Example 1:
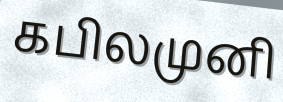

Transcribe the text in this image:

கபிலமுனி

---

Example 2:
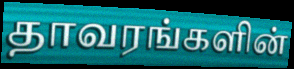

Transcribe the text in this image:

தாவரங்களின்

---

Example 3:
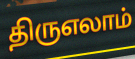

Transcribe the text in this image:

திருஎலாம்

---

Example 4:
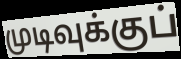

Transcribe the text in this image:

முடிவுக்குப்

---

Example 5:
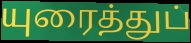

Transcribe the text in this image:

யுரைத்துப்